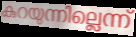
കുറയുന്നില്ലെന്ന്